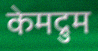
केमद्रुम